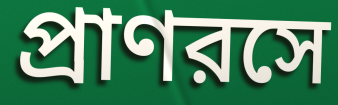
প্রাণরসে